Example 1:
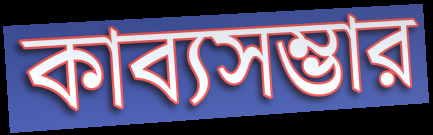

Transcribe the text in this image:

কাব্যসম্ভার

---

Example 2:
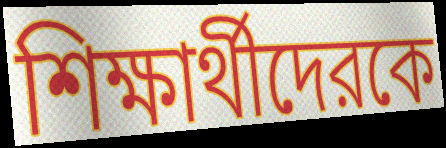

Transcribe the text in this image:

শিক্ষার্থীদেরকে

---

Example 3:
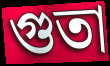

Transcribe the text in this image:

গুতা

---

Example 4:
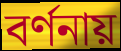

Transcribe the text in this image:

বর্ণনায়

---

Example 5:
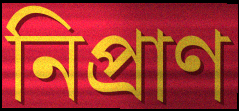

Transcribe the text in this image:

নিপ্রাণ